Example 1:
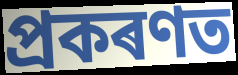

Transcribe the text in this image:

প্ৰকৰণত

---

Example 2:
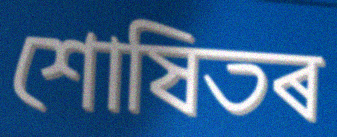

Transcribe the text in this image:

শোষিতৰ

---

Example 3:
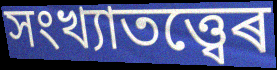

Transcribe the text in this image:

সংখ্যাতত্ত্বেৰ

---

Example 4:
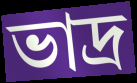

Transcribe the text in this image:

ভাদ্ৰ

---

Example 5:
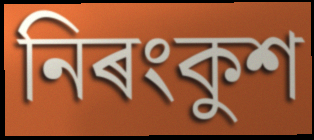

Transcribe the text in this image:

নিৰংকুশ